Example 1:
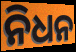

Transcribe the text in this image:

ନିଧନ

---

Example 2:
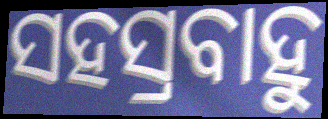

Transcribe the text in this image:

ସହସ୍ରବାହୁ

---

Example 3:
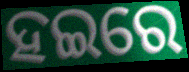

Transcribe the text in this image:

ହଇରେ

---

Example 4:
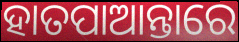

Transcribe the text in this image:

ହାତପାଆନ୍ତାରେ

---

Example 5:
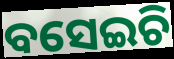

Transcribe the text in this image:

ବସେଇଚି